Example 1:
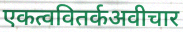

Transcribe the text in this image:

एकत्ववितर्कअवीचार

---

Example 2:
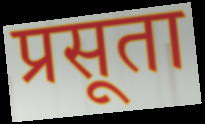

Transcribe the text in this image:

प्रसूता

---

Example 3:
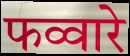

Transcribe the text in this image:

फव्वारे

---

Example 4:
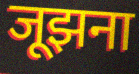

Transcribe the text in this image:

जूझना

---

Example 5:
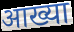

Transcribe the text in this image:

आख्या